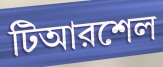
টিআরশেল